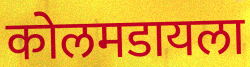
कोलमडायला